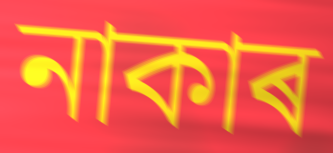
নাকাৰ